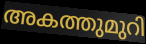
അകത്തുമുറി